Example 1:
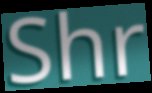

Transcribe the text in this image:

Shr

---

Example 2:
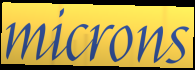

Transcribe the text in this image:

microns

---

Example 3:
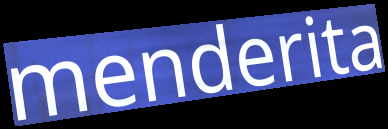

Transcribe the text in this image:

menderita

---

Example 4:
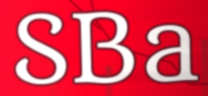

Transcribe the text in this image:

SBa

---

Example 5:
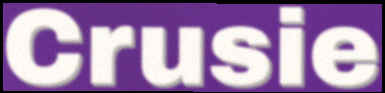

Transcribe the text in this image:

Crusie